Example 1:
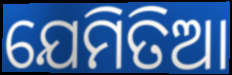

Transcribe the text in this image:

ଯେମିତିଆ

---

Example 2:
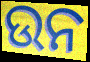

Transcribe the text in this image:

ଉନ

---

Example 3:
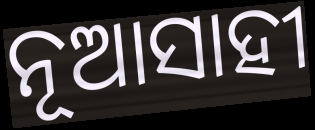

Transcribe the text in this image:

ନୂଆସାହୀ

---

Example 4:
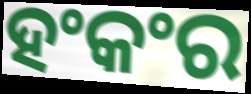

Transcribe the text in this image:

ହଂକଂର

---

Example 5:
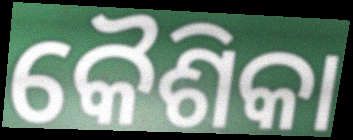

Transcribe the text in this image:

କୈଶିକା